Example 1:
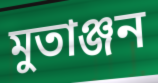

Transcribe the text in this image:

মুতাঞ্জন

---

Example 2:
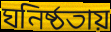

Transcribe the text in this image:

ঘনিষ্ঠতায়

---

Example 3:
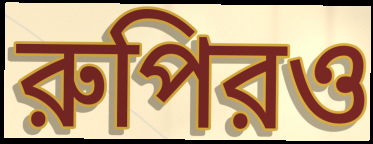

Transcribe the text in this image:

রুপিরও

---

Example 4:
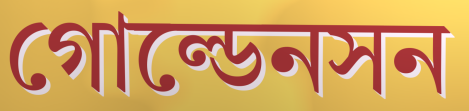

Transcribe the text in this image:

গোল্ডেনসন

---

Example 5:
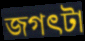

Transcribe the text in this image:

জগৎটা